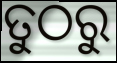
ତୁଠରୁ